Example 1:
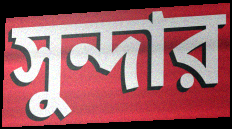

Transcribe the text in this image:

সুন্দার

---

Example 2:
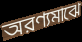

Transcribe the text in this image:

অরণ্যমাঝে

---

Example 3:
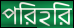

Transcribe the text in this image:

পরিহরি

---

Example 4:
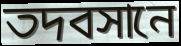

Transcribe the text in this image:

তদবসানে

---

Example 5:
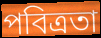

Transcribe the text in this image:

পবিত্রতা